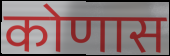
कोणास